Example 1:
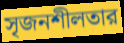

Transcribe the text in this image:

সৃজনশীলতার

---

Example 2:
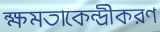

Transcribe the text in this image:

ক্ষমতাকেন্দ্রীকরণ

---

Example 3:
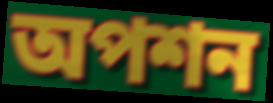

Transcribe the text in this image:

অপশন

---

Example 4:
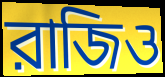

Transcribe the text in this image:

রাজিও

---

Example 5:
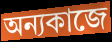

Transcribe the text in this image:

অন্যকাজে